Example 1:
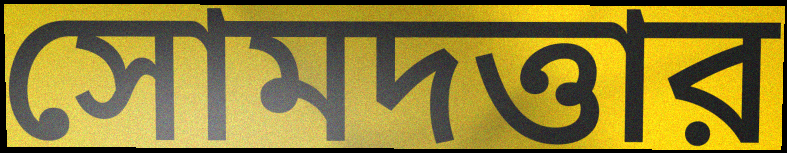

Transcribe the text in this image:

সোমদত্তার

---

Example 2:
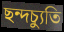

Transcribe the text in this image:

ছন্দচ্যুতি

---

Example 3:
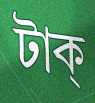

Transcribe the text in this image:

টাক্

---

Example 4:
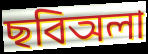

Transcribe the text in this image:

ছবিঅলা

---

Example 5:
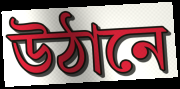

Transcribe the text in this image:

উঠানে